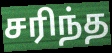
சரிந்த